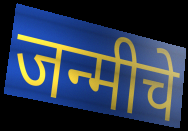
जन्मीचे